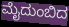
ಮೈದುಂಬಿದ